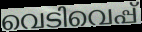
വെടിവെപ്പ്